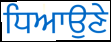
ਧਿਆਉਣੇ